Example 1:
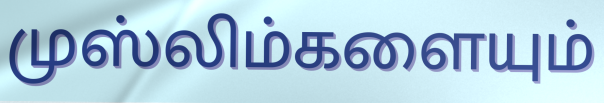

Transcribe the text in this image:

முஸ்லிம்களையும்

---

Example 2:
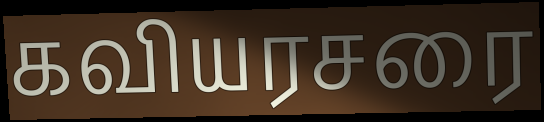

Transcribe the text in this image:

கவியரசரை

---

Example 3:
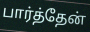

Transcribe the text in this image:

பார்த்தேன்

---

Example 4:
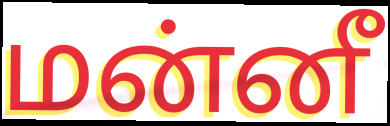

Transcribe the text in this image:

மன்னீ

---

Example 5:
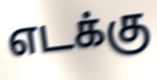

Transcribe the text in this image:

எடக்கு